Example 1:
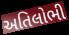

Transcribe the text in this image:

અતિલોભી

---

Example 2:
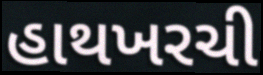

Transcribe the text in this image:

હાથખરચી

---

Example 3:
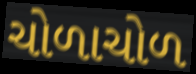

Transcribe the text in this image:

ચોળાચોળ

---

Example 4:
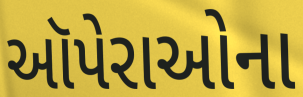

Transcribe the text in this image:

ઑપેરાઓના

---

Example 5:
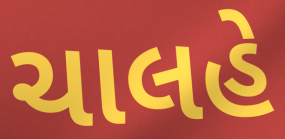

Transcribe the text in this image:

ચાલહે